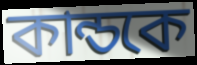
কান্ডকে